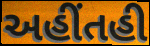
અહીંતહી